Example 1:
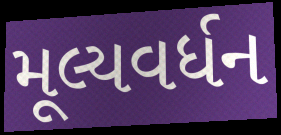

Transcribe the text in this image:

મૂલ્યવર્ધન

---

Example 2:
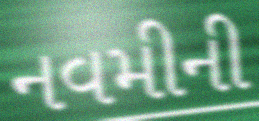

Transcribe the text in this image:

નવમીની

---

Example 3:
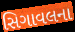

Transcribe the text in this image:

સિગાવલના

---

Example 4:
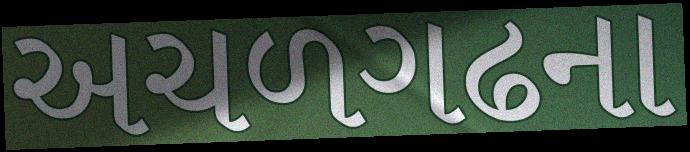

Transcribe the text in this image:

અચળગઢના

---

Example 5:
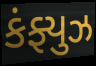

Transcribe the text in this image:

કંફ્યુઝ